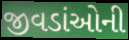
જીવડાંઓની